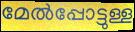
മേൽപ്പോട്ടുള്ള